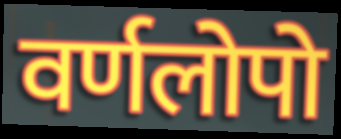
वर्णलोपो